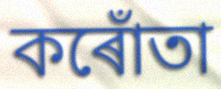
কৰোঁতা